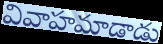
వివాహమాడాడు